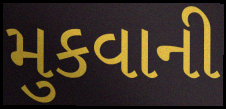
મુકવાની